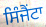
ਸਿੰਜੈਂਟਾ